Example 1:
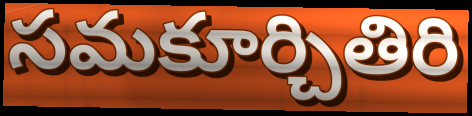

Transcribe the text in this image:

సమకూర్చితిరి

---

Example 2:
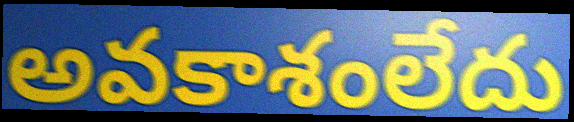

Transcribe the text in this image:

అవకాశంలేదు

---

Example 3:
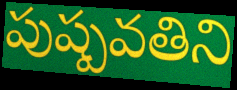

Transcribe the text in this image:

పుష్పవతిని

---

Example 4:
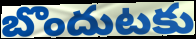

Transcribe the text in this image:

బొందుటకు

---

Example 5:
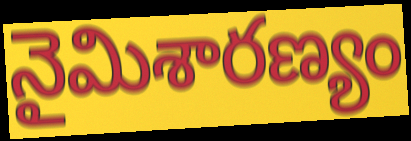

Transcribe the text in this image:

నైమిశారణ్యం